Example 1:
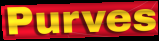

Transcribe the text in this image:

Purves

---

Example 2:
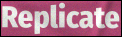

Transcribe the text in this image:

Replicate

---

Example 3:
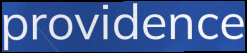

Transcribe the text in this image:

providence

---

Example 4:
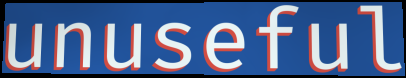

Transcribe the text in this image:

unuseful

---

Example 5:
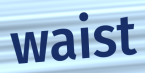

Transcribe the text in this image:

waist